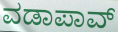
ವಡಾಪಾವ್